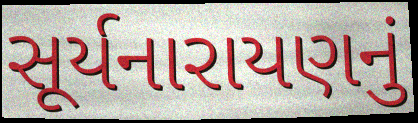
સૂર્યનારાયણનું